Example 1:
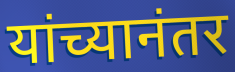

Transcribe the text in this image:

यांच्यानंतर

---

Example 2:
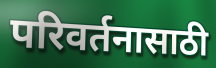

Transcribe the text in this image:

परिवर्तनासाठी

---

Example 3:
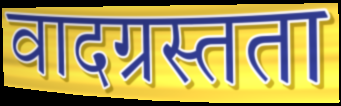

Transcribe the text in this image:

वादग्रस्तता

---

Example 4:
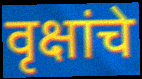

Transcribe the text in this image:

वृक्षांचे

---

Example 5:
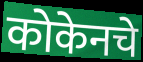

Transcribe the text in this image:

कोकेनचे